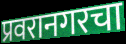
प्रवरानगरचा